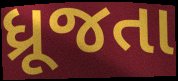
ધ્રૂજતા